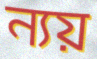
ন্যয়